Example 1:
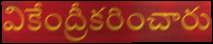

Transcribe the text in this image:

వికేంద్రీకరించారు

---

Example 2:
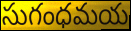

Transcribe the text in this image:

సుగంధమయ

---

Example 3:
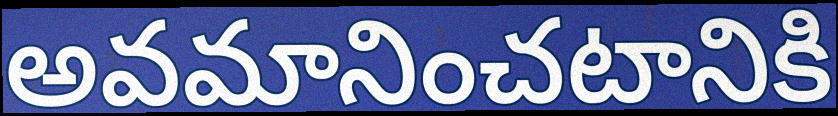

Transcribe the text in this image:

అవమానించటానికి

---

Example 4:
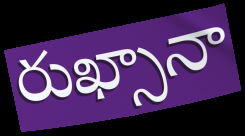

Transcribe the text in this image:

రుఖ్సానా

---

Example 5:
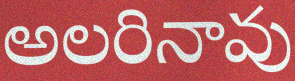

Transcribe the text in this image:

అలరినావు